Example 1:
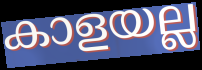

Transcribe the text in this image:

കാളയല്ല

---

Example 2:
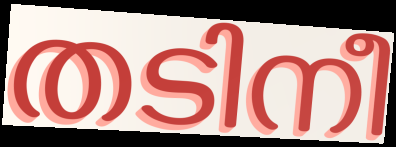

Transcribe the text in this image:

തടിനീ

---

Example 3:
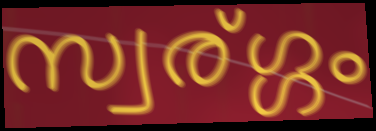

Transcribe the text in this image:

സ്വര്ഗ്ഗം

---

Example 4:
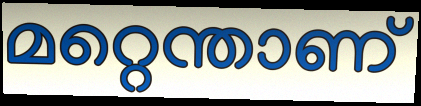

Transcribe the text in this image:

മറ്റെന്താണ്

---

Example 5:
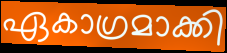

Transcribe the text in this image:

ഏകാഗ്രമാക്കി